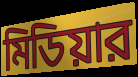
মিডিয়ার